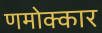
णमोक्कार